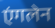
एंगलेन